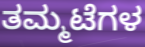
ತಮ್ಮಟೆಗಳ